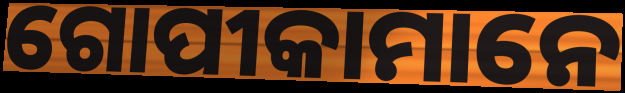
ଗୋପୀକାମାନେ